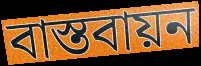
বাস্তবায়ন